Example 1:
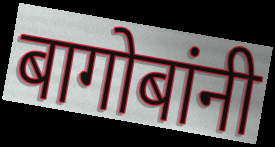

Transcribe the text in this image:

बागोबांनी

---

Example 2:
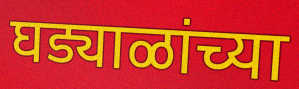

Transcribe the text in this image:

घड्याळांच्या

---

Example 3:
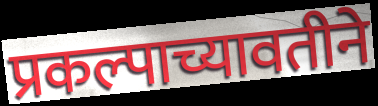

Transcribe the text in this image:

प्रकल्पाच्यावतीने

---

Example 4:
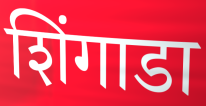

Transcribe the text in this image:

शिंगाडा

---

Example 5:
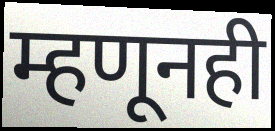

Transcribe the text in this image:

म्‍हणूनही